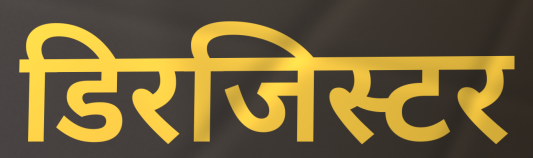
डिरजिस्टर